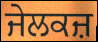
ਜੇਲਕਜ਼